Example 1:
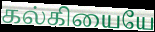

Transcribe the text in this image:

கல்கியையே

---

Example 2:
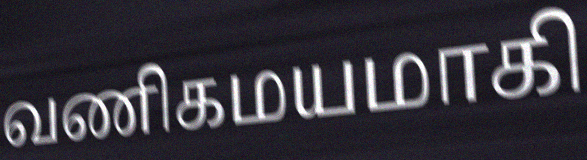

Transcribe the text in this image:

வணிகமயமாகி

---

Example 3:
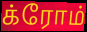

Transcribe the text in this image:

க்ரோம்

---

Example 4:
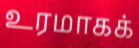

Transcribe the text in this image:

உரமாகக்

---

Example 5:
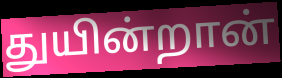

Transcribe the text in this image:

துயின்றான்